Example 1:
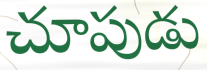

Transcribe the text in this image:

చూపుడు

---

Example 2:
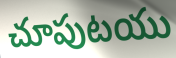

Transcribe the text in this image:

చూపుటయు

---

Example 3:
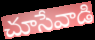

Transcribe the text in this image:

చూసేవాడి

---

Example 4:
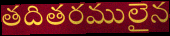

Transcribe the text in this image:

తదితరములైన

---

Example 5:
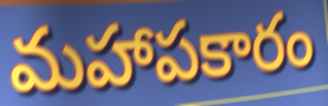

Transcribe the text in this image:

మహాపకారం